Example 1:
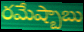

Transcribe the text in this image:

రమేష్బాబు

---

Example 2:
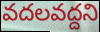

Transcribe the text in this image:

వదలవద్దని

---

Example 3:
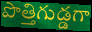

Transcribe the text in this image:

పొత్తిగుడ్డగా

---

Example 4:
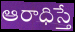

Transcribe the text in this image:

ఆరాధిస్తే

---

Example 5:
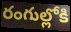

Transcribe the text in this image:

రంగుల్లోకి